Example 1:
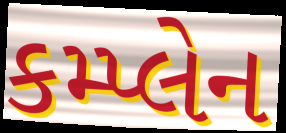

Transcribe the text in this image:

કમ્પ્લેન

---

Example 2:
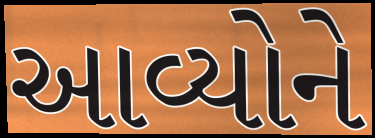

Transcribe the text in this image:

આવ્યોને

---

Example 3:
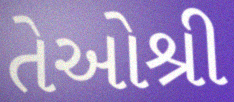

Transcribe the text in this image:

તેઓશ્રી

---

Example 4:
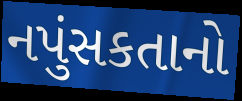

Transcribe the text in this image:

નપુંસકતાનો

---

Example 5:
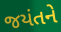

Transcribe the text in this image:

જયંતને